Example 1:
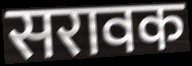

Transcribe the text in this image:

सरावक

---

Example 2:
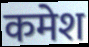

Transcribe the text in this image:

कमेश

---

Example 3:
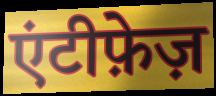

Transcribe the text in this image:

एंटीफ़ेज़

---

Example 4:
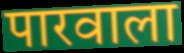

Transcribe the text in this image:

पारवाला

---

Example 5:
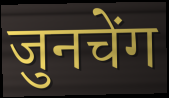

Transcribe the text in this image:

जुनचेंग